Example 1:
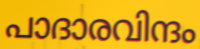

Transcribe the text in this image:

പാദാരവിന്ദം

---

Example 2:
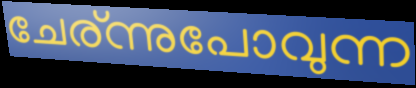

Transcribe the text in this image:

ചേര്ന്നുപോവുന്ന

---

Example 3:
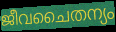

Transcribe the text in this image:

ജീവചൈതന്യം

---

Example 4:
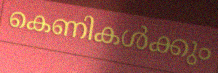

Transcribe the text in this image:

കെണികൾക്കും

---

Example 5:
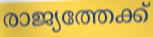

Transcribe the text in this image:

രാജ്യത്തേക്ക്